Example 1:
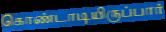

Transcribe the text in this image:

கொண்டாடியிருப்பார்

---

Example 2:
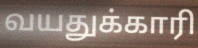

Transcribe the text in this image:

வயதுக்காரி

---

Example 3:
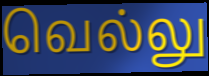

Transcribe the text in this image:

வெல்லு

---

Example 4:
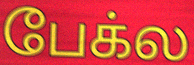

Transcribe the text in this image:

பேக்ல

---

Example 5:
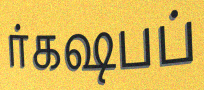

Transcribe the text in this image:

ர்கஷபப்